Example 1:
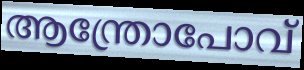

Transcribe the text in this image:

ആന്ത്രോപോവ്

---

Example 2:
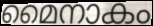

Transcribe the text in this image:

മൈനാകം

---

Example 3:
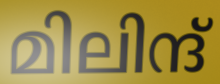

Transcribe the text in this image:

മിലിന്ദ്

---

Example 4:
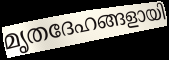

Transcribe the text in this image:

മൃതദേഹങ്ങളായി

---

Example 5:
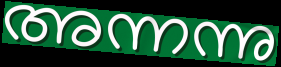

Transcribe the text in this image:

അന്നന്നു